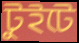
টুইটে